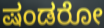
ಷಂಡರೋ